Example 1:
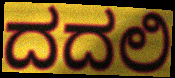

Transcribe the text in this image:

ದದಲಿ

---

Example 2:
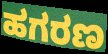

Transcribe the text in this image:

ಹಗರಣ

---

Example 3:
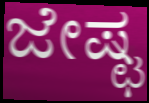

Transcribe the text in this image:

ಜೇಷ್ಟ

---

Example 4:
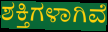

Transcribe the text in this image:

ಶಕ್ತಿಗಳಾಗಿವೆ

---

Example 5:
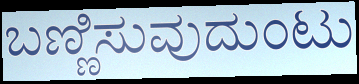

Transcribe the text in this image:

ಬಣ್ಣಿಸುವುದುಂಟು